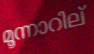
മൂന്നാറില്